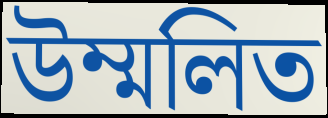
উম্মলিত